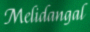
Melidangal